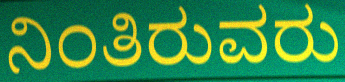
ನಿಂತಿರುವರು